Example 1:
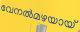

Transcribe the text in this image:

വേനൽമഴയായ്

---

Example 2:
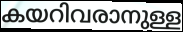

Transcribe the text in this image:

കയറിവരാനുള്ള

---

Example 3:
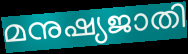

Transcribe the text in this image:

മനുഷ്യജാതി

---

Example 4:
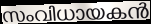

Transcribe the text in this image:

സംവിധായകൻ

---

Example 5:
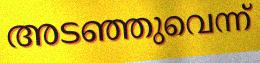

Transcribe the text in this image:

അടഞ്ഞുവെന്ന്